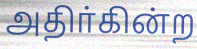
அதிர்கின்ற